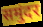
समुंदर